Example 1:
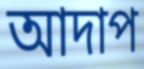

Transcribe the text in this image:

আদাপ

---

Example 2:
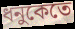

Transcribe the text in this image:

ধনুকেতে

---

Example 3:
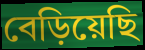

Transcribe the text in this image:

বেড়িয়েছি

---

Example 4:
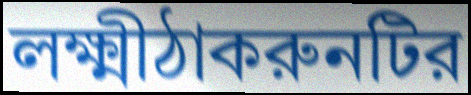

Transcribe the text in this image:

লক্ষ্মীঠাকরুনটির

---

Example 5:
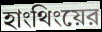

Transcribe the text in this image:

হাংথিংয়ের